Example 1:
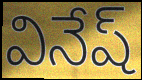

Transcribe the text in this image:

వినేష్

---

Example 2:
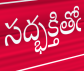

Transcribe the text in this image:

సద్భక్తితోఁ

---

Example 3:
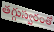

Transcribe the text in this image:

తగ్గుస్వరంతో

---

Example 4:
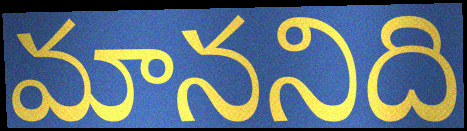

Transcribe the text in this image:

మాననిది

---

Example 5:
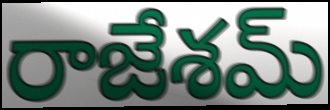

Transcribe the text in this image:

రాజేశమ్